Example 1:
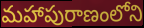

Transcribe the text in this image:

మహాపురాణంలోని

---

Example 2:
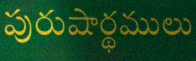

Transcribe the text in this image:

పురుషార్థములు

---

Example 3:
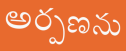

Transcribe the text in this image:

అర్పణను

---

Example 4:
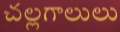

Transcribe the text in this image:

చల్లగాలులు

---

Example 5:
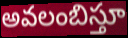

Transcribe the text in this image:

అవలంబిస్తూ